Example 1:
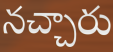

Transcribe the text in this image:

నచ్చారు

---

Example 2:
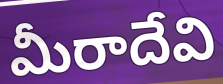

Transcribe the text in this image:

మీరాదేవి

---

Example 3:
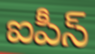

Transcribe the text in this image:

ఐపీస్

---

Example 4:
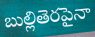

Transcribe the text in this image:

బుల్లితెరపైనా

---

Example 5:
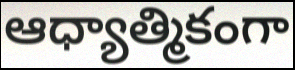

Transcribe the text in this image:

ఆధ్యాత్మికంగా